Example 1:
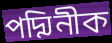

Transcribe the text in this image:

পদ্মিনীক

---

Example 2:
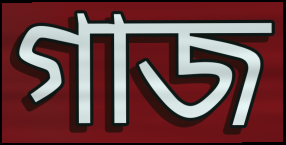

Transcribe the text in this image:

গাজ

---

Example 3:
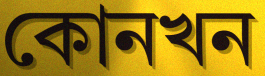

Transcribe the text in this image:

কোনখন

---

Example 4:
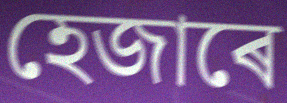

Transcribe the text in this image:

হেজাৰে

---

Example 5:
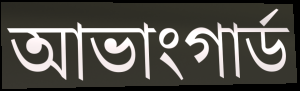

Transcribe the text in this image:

আভাংগাৰ্ড